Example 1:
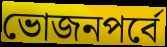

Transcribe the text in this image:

ভোজনপর্বে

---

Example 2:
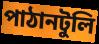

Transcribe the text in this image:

পাঠানটুলি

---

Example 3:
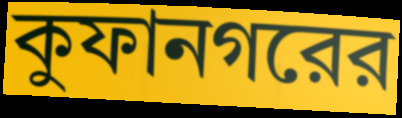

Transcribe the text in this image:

কুফানগরের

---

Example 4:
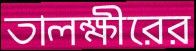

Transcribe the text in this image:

তালক্ষীরের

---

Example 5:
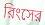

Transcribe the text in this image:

রিংসের